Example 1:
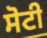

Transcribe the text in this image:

ਸੋਟੀ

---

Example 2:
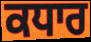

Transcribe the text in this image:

ਕਧਾਰ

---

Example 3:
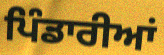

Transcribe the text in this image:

ਪਿੰਡਾਰੀਆਂ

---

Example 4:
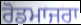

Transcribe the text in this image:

ਰੋਡਮਾਜਰਾ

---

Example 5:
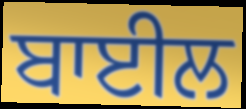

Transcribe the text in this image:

ਬਾਈਲ